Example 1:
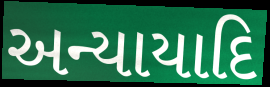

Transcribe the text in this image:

અન્યાયાદિ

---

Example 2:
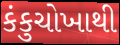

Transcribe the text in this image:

કંકુચોખાથી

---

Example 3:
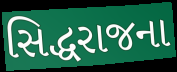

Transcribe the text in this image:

સિદ્ધરાજના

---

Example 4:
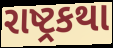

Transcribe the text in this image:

રાષ્ટ્રકથા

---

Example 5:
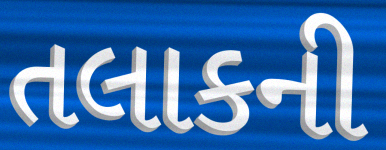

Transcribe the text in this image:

તલાકની